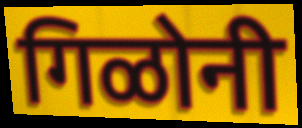
गिळोनी